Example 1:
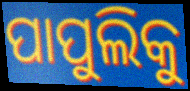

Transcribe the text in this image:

ପାପୁଲିକୁ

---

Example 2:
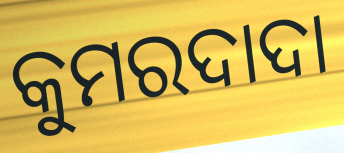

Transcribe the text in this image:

କୁମରଦାଦା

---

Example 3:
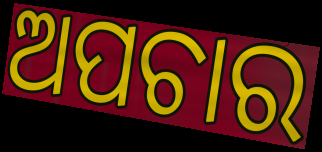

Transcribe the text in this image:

ଅପଚାର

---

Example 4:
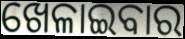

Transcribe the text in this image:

ଖେଳାଇବାର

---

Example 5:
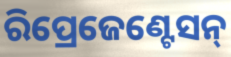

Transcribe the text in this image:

ରିପ୍ରେଜେଣ୍ଟେସନ୍